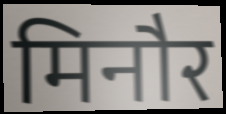
मिनौर